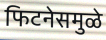
फिटनेसमुळे